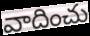
వాదించు